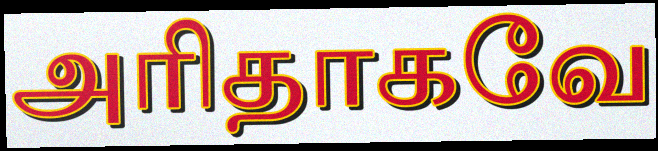
அரிதாகவே